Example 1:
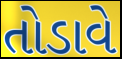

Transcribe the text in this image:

તોડાવે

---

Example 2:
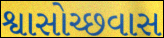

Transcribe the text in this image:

શ્વાસોચ્છવાસ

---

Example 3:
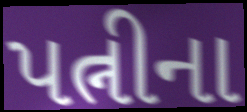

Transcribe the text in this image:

પત્નીના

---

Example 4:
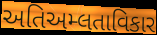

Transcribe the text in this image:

અતિઅમ્લતાવિકાર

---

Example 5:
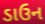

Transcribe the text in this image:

ડાઉન